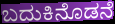
ಬದುಕಿನೊಡನೆ